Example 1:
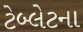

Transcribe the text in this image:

ટેબ્લેટના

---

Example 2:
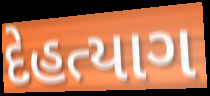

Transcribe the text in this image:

દેહત્યાગ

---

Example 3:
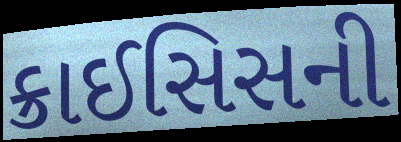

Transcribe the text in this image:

ક્રાઈસિસની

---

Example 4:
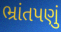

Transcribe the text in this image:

ભ્રાંતપણું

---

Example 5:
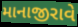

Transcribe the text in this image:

માનાજીરાવે